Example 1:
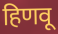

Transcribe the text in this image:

हिणवू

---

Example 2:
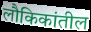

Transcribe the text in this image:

लौकिकांतील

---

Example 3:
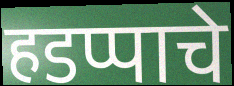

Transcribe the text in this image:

हडप्पाचे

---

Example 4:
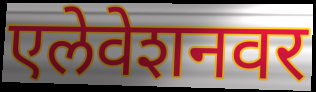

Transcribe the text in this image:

एलेवेशनवर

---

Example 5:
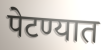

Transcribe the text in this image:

पेटण्यात